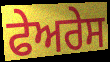
ਫੇਅਰੇਸ